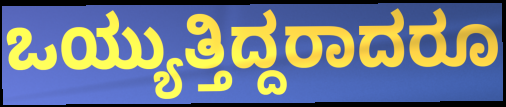
ಒಯ್ಯುತ್ತಿದ್ದರಾದರೂ